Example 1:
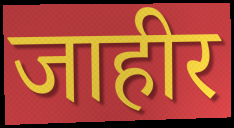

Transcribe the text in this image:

जाहीर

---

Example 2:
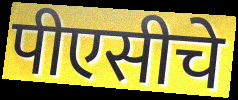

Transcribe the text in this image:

पीएसीचे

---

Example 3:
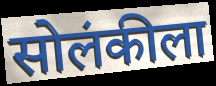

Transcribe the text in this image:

सोलंकीला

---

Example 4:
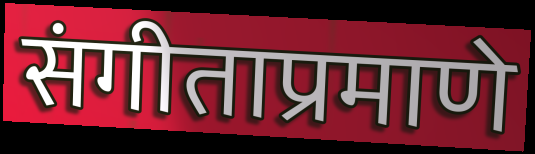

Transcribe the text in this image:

संगीताप्रमाणे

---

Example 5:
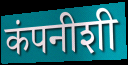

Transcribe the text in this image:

कंपनीशी